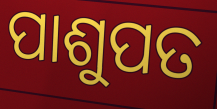
ପାଶୁପତ